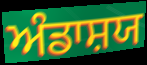
ਅੰਡਾਸ਼ਯ